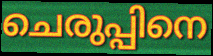
ചെരുപ്പിനെ